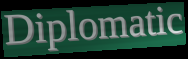
Diplomatic